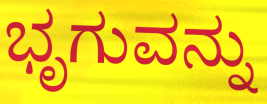
ಭೃಗುವನ್ನು